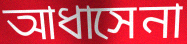
আধাসেনা